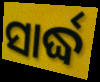
ସାର୍ଦ୍ଧ